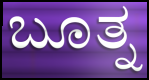
ಬೂತ್ನ